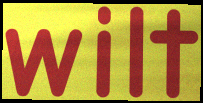
wilt